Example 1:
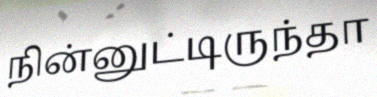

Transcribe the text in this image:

நின்னுட்டிருந்தா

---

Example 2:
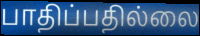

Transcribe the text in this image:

பாதிப்பதில்லை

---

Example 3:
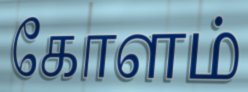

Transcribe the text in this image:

கோளம்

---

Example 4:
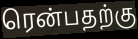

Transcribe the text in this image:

ரென்பதற்கு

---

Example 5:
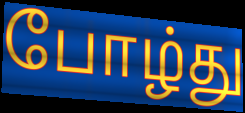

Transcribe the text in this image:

போழ்து